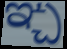
ఞ్చ